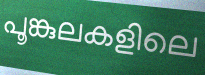
പൂങ്കുലകളിലെ